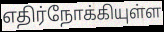
எதிர்நோக்கியுள்ள